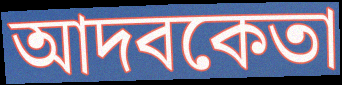
আদবকেতা